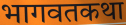
भागवतकथा